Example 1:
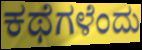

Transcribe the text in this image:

ಕಥೆಗಳೆಂದು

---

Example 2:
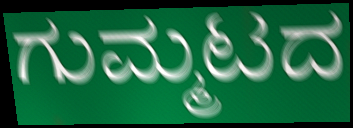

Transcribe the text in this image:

ಗುಮ್ಮಟದ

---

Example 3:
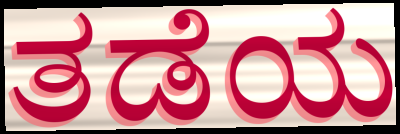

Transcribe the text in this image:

ತಡೆಯ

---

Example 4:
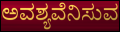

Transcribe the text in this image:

ಅವಶ್ಯವೆನಿಸುವ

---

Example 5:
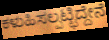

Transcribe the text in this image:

ಕಳುಹಿಸಲ್ಪಟ್ಟಿದ್ದೇನೆ